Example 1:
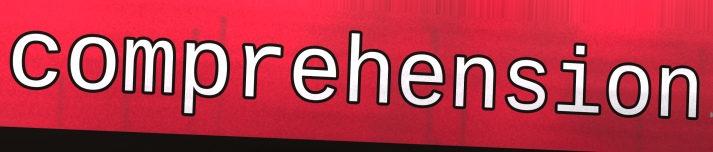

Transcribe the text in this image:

comprehension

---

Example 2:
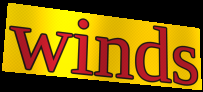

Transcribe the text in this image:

winds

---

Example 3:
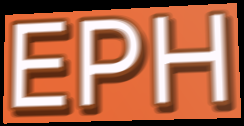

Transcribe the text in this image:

EPH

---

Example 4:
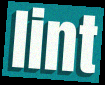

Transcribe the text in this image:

lint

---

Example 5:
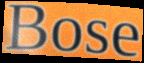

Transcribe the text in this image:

Bose